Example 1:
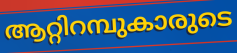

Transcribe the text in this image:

ആറ്റിറമ്പുകാരുടെ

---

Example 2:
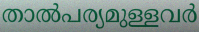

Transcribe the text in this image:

താൽപര്യമുള്ളവർ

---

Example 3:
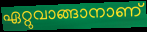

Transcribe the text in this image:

ഏറ്റുവാങ്ങാനാണ്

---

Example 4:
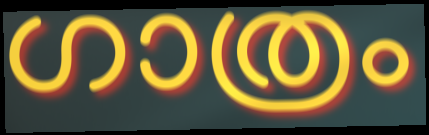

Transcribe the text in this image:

ഗാത്രം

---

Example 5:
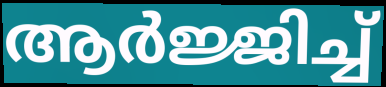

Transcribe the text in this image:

ആർജ്ജിച്ച്